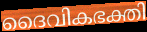
ദൈവികഭക്തി